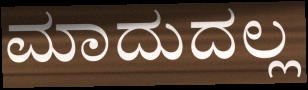
ಮಾದುದಲ್ಲ